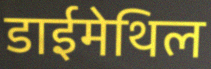
डाईमेथिल